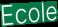
Ecole